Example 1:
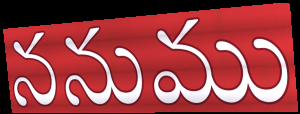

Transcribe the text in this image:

ననుము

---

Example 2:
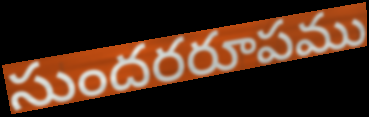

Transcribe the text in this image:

సుందరరూపము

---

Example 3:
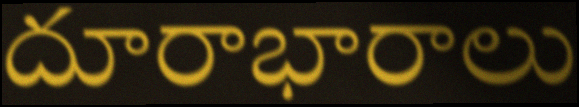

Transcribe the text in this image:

దూరాభారాలు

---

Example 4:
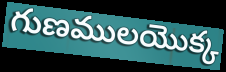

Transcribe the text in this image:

గుణములయొక్క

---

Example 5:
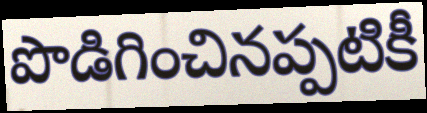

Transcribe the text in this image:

పొడిగించినప్పటికీ